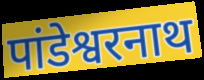
पांडेश्वरनाथ